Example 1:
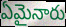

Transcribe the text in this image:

ఏమైనారు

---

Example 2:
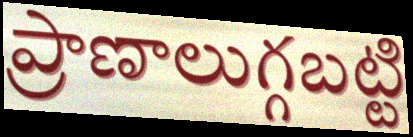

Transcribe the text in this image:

ప్రాణాలుగ్గబట్టి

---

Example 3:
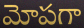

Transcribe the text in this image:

మోపగా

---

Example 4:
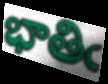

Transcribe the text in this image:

భాతిఁ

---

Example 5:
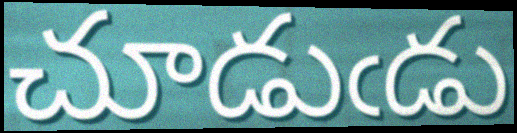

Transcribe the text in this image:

చూడుఁడు